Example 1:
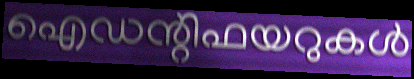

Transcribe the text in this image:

ഐഡന്റിഫയറുകൾ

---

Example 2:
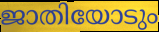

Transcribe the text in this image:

ജാതിയോടും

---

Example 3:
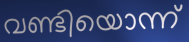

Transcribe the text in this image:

വണ്ടിയൊന്ന്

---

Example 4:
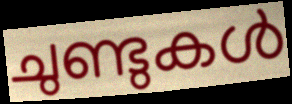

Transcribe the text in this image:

ചുണ്ടുകൾ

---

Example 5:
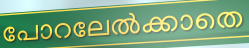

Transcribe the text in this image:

പോറലേൽക്കാതെ